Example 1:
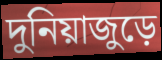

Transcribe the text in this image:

দুনিয়াজুড়ে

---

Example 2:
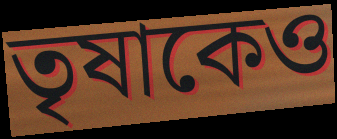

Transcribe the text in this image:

তৃষাকেও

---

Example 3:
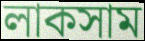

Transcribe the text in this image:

লাকসাম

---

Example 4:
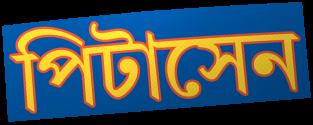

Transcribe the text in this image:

পিটাসেন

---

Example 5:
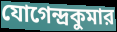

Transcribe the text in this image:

যোগেন্দ্রকুমার